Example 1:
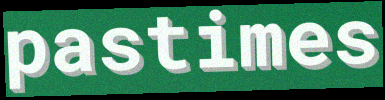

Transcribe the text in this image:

pastimes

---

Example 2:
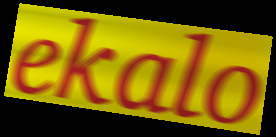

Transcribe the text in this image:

ekalo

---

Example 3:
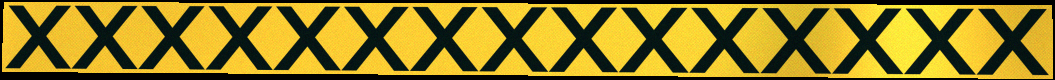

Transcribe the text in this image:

xxxxxxxxxxxxxxx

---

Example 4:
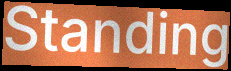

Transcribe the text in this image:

Standing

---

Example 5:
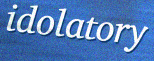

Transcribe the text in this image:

idolatory